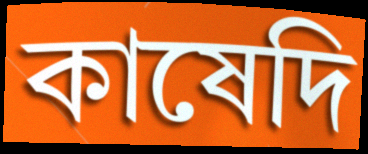
কাষেদি